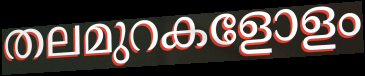
തലമുറകളോളം